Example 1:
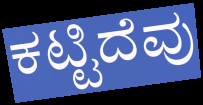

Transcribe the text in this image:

ಕಟ್ಟಿದೆವು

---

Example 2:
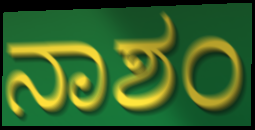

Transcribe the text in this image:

ನಾಶಂ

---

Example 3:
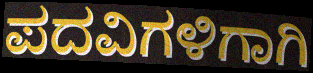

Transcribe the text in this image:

ಪದವಿಗಳಿಗಾಗಿ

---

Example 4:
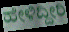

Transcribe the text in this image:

ಹೇಳಿದ್ದೀರಿ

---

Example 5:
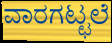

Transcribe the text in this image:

ವಾರಗಟ್ಟಲೆ